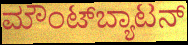
ಮೌಂಟ್‌ಬ್ಯಾಟನ್